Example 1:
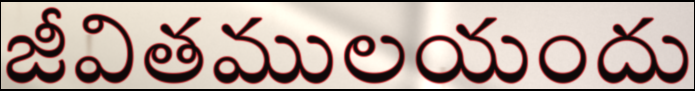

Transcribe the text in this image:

జీవితములయందు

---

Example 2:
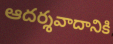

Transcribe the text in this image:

ఆదర్శవాదానికి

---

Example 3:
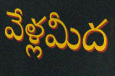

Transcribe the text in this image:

వేళ్లమీద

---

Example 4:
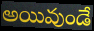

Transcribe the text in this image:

అయివుండే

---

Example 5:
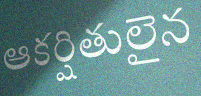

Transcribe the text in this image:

ఆకర్షితులైన